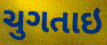
ચુગતાઇ